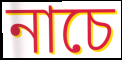
নাচে